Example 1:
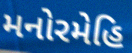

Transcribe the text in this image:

મનોરમેહિ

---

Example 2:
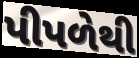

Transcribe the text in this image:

પીપળેથી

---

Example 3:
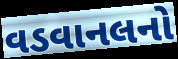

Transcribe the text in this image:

વડવાનલનો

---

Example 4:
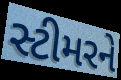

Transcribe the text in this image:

સ્ટીમરને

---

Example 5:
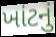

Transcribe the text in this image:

ખાંટનું